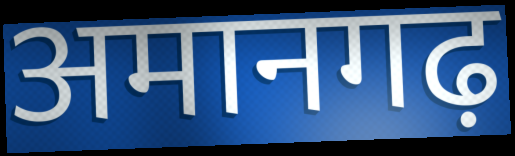
अमानगढ़